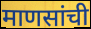
माणसांची